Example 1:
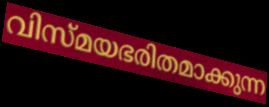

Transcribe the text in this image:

വിസ്മയഭരിതമാക്കുന്ന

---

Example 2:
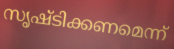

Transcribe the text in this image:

സൃഷ്ടിക്കണമെന്ന്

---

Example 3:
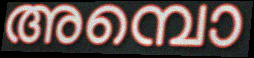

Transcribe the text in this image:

അമ്പൊ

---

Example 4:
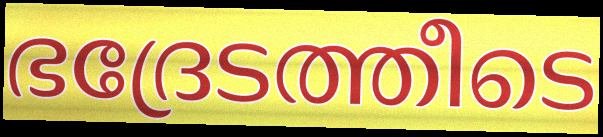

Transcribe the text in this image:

ഭദ്രേടത്തീടെ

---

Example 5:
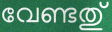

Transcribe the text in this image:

വേണ്ടതു്